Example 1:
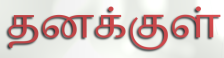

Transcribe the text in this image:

தனக்குள்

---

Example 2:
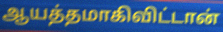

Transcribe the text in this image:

ஆயத்தமாகிவிட்டான்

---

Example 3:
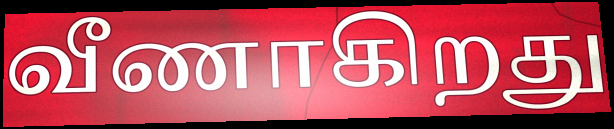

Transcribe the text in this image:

வீணாகிறது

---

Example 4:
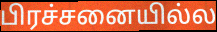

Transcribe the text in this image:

பிரச்சனையில்ல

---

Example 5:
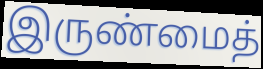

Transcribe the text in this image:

இருண்மைத்